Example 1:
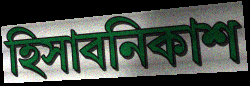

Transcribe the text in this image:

হিসাবনিকাশ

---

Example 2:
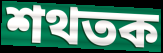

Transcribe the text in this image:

শথতক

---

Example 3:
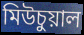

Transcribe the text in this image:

মিউচুয়াল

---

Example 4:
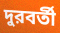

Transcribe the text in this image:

দুরবর্তী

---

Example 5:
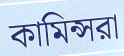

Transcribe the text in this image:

কামিন্সরা